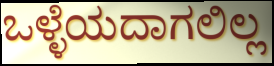
ಒಳ್ಳೆಯದಾಗಲಿಲ್ಲ